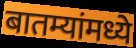
बातम्यांमध्ये